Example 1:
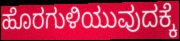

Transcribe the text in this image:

ಹೊರಗುಳಿಯುವುದಕ್ಕೆ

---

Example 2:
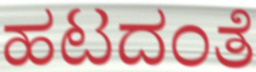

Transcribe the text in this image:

ಹಟದಂತೆ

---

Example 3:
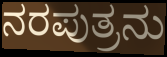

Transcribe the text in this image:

ನರಪುತ್ರನು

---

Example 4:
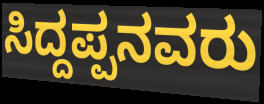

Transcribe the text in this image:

ಸಿದ್ದಪ್ಪನವರು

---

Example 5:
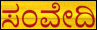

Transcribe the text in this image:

ಸಂವೇದಿ